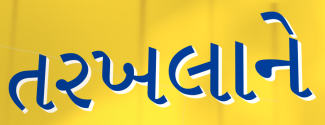
તરખલાને